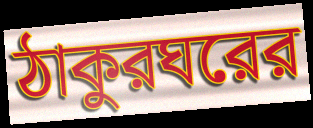
ঠাকুরঘরের